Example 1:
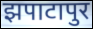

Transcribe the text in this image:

झपाटापुर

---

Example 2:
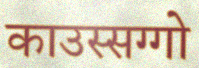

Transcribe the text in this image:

काउस्सग्गो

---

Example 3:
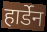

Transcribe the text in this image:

हार्डेन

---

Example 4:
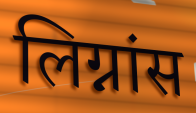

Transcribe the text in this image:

लिग्नांस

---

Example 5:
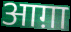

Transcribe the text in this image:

आग़ा